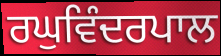
ਰਘੁਵਿੰਦਰਪਾਲ